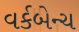
વર્કબેન્ચ